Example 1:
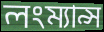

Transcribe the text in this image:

লংম্যান্স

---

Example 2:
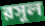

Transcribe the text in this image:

রসূল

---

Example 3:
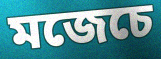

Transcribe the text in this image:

মজেচে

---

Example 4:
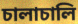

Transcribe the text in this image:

চালাচালি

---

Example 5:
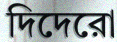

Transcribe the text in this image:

দিদেরো